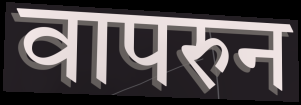
वापरुन